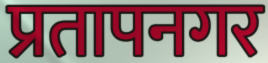
प्रतापनगर